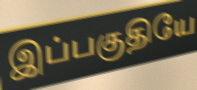
இப்பகுதியே